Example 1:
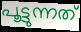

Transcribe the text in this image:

പൂട്ടുന്നത്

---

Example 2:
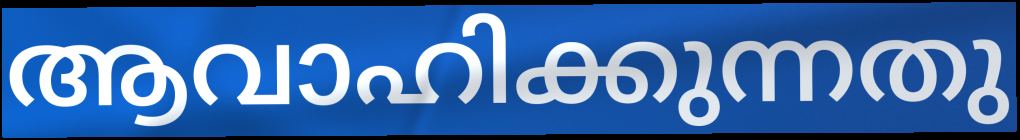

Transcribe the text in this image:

ആവാഹിക്കുന്നതു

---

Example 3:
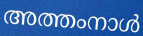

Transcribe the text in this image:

അത്തംനാൾ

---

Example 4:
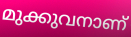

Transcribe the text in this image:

മുക്കുവനാണ്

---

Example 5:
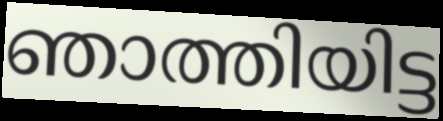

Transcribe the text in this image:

ഞാത്തിയിട്ട